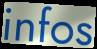
infos